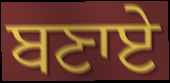
ਬਣਾਏ